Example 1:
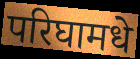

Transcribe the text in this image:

परिघामधे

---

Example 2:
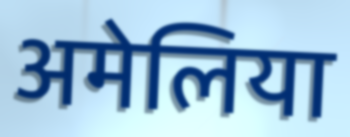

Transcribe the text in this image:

अमेलिया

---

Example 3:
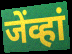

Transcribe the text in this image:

जेंव्हां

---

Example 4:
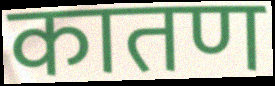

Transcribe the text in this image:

कातण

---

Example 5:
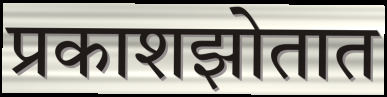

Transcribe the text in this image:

प्रकाशझोतात